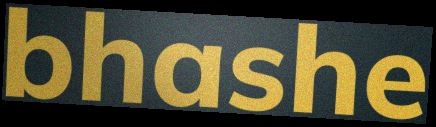
bhashe